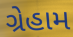
ગ્રેહામ